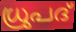
ധ്രുപദ്